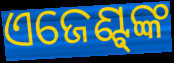
ଏଜେଣ୍ଟ୍‍ଙ୍କ